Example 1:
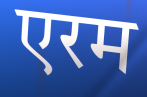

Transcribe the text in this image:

एरम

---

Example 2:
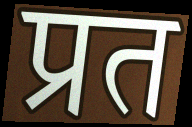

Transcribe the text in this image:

प्रत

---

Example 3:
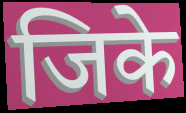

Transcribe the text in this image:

जिके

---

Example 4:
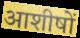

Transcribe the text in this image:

आशीषों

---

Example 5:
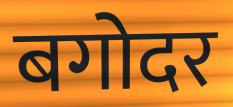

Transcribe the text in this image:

बगोदर